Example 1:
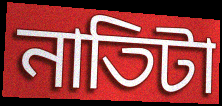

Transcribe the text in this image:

নাতিটা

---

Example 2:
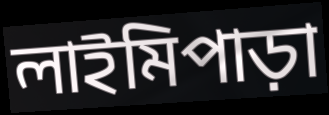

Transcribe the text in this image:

লাইমিপাড়া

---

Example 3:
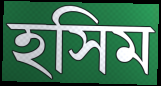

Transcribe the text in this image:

হসিম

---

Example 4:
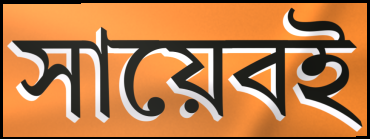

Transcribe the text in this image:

সায়েবই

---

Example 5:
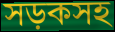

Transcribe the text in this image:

সড়কসহ